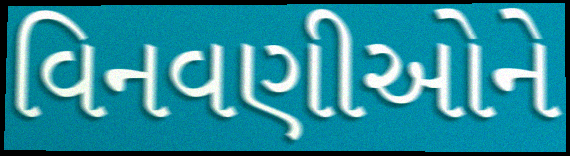
વિનવણીઓને